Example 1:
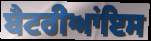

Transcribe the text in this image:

ਬੈਟਰੀਆਂਇਸ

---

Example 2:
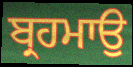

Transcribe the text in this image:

ਬ੍ਰਹਮਾਉ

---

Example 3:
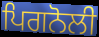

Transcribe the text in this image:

ਪਿਗਨੋਲੀ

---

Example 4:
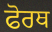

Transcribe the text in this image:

ਫੋਰਥ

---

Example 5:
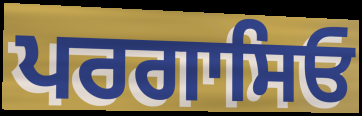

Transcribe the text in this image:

ਪਰਗਾਸਿਓ